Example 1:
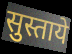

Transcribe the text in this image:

सुस्ताये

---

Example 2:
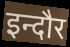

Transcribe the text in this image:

इन्दौर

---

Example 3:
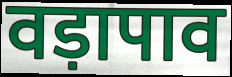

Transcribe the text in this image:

वड़ापाव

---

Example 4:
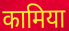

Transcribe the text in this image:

कामिया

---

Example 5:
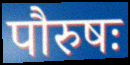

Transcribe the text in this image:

पौरुषः